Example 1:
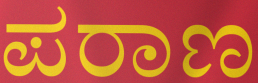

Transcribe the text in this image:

ಪರಾಣ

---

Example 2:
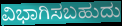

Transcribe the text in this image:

ವಿಭಾಗಿಸಬಹುದು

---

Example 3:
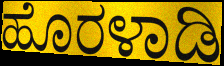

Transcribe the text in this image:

ಹೊರಳಾಡಿ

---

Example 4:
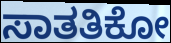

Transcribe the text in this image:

ಸಾತತಿಕೋ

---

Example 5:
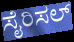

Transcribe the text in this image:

ಸೈರಿಸಲ್